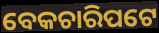
ବେକଚାରିପଟେ